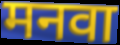
मनवा